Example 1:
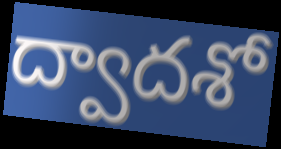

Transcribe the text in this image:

ద్వాదశో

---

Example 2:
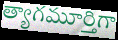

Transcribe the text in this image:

త్యాగమూర్తిగా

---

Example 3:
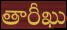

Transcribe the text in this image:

తారీఖు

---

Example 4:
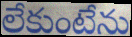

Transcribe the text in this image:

లేకుంటేను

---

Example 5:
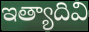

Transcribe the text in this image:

ఇత్యాదివి